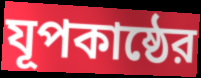
যূপকাষ্ঠের